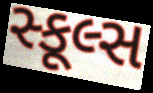
સ્કૂલ્સ